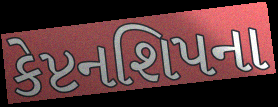
કેપ્ટનશિપના